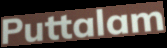
Puttalam